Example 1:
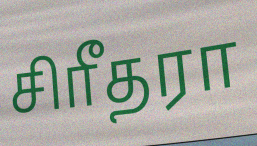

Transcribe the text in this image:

சிரீதரா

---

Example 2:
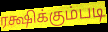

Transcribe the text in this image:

ரக்ஷிக்கும்படி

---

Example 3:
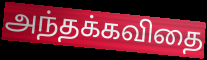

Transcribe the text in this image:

அந்தக்கவிதை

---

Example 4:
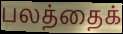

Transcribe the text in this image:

பலத்தைக்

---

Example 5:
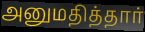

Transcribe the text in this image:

அனுமதித்தார்